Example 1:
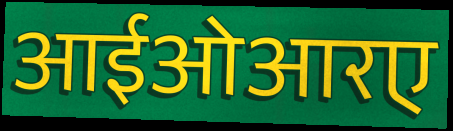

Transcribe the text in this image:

आईओआरए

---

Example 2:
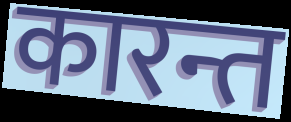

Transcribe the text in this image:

कारन्त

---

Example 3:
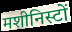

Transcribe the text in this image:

मशीनिस्टों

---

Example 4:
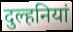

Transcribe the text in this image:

दुल्हनियां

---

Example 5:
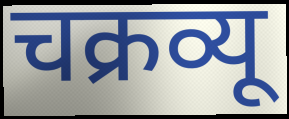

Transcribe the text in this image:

चक्रव्यू